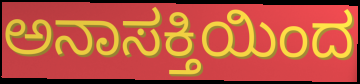
ಅನಾಸಕ್ತಿಯಿಂದ